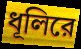
ধূলিরে